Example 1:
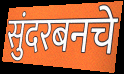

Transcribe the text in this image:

सुंदरबनचे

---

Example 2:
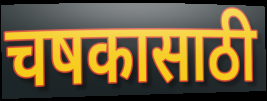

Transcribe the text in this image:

चषकासाठी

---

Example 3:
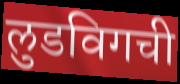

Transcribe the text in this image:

लुडविगची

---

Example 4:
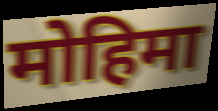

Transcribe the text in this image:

मोहिमा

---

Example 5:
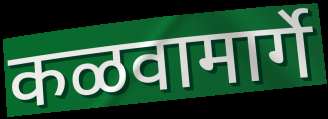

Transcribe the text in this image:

कळवामार्गे